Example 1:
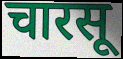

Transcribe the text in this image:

चारसू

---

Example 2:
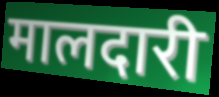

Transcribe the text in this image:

मालदारी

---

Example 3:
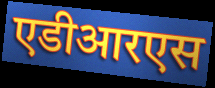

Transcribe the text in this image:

एडीआरएस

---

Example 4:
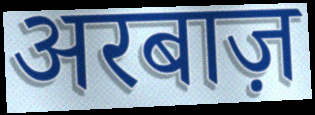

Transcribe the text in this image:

अरबाज़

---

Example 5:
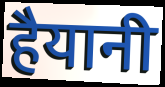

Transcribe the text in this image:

हैयानी